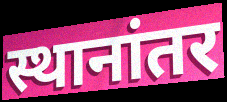
स्थानांतर